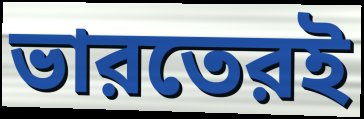
ভারতেরই